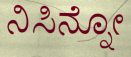
ನಿಸಿನ್ನೋ